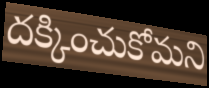
దక్కించుకోమని